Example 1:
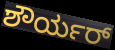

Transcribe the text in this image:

ಶೌರ್ಯರ್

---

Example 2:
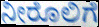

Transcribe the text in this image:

ನೀರೊಲಿಗೆ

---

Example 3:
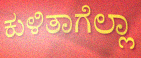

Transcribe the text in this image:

ಕುಳಿತಾಗೆಲ್ಲಾ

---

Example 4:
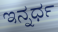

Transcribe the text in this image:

ಇನ್ನರ್ಧ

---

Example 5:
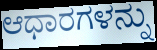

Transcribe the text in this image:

ಆಧಾರಗಳನ್ನು